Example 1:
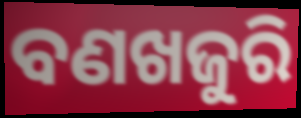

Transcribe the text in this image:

ବଣଖଜୁରି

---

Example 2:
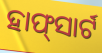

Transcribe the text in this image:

ହାଫ୍‍ସାର୍ଟ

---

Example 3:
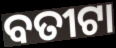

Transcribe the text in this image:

ବତୀଟା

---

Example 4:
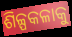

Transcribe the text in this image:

ଶିଳ୍ପକଳାକୁ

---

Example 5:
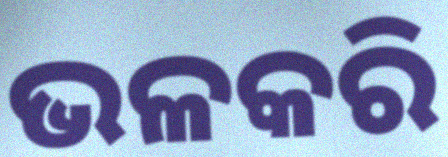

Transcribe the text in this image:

ଭଳକରି